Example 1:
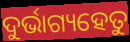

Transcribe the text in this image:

ଦୁର୍ଭାଗ୍ୟହେତୁ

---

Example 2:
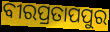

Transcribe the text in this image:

ବୀରପ୍ରତାପପୁର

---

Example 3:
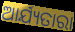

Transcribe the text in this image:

ଆର୍ଯ୍ୟତାରା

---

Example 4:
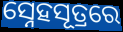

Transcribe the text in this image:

ସ୍ନେହସୂତ୍ରରେ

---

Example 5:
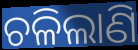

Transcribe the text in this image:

ଚଳିଲାଣି